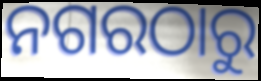
ନଗରଠାରୁ